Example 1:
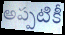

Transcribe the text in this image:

అప్పటికీ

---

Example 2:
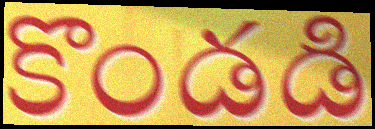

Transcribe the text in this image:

కొండడి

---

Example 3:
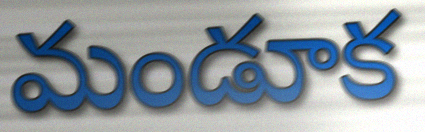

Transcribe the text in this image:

మండూక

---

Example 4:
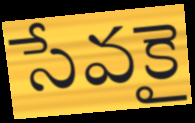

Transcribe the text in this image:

సేవకై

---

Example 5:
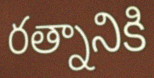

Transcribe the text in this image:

రత్నానికి